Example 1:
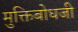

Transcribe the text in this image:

मुक्तिबोधजी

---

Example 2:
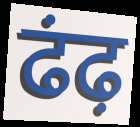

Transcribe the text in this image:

ढंढ़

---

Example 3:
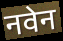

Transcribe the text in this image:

नवेन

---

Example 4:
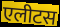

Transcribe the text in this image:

एलीटस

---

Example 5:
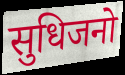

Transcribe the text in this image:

सुधिजनो